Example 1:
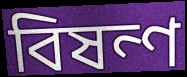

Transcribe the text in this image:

বিষন্ণ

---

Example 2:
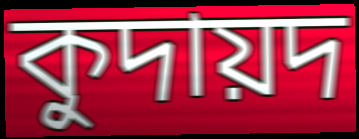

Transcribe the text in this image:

কুদায়দ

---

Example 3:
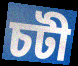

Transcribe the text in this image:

চটী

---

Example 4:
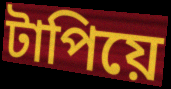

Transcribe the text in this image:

টাপিয়ে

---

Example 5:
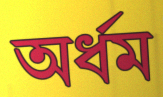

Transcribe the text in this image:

অর্ধম